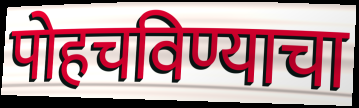
पोहचविण्याचा